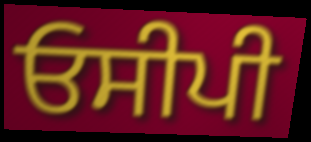
ਓਸੀਪੀ